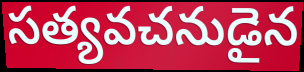
సత్యవచనుడైన